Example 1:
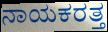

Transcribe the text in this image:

ನಾಯಕರತ್ತ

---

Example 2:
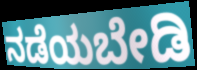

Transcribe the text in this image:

ನಡೆಯಬೇಡಿ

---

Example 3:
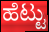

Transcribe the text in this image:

ಹೆಟ್ಟು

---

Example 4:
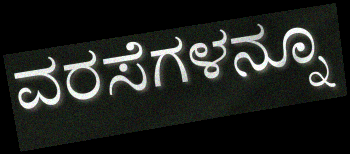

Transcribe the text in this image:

ವರಸೆಗಳನ್ನೂ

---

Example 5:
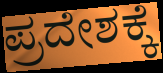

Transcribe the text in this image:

ಪ್ರದೇಶಕ್ಕೆ